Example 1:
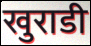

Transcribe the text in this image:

खुराडी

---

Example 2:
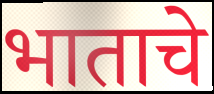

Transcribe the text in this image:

भाताचे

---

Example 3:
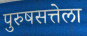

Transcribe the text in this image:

पुरुषसत्तेला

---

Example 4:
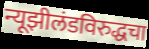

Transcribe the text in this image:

न्यूझीलंडविरुद्धचा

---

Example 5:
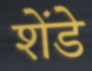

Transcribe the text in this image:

शेंडे